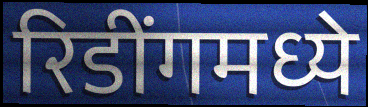
रिडींगमध्ये